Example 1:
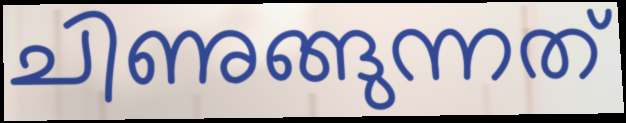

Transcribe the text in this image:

ചിണുങ്ങുന്നത്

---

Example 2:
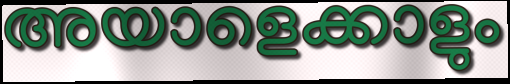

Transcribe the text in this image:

അയാളെക്കാളും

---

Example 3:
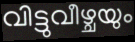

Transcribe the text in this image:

വിട്ടുവീഴ്ചയും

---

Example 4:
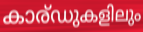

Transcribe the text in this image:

കാര്ഡുകളിലും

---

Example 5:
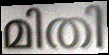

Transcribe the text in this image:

മിതി